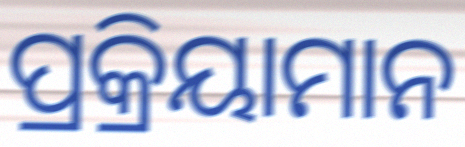
ପ୍ରକ୍ରିୟାମାନ